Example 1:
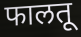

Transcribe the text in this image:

फालतू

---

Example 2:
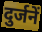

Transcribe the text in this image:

दुर्जनें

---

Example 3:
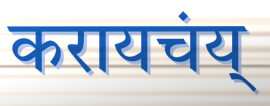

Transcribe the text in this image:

करायचंय्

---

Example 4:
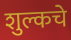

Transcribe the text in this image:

शुल्कचे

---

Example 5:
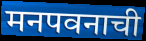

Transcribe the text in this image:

मनपवनाची